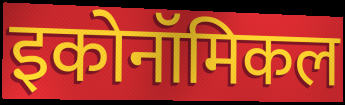
इकोनॉमिकल